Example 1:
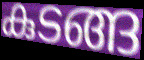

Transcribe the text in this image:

കുടങ്ങ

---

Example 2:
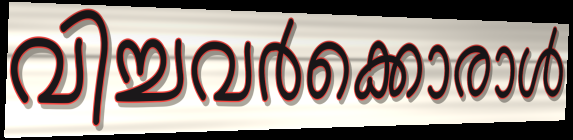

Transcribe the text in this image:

വിച്ചവർക്കൊരാൾ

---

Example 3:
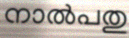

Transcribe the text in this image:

നാൽപതു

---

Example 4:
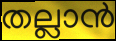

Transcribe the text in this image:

തല്ലാൻ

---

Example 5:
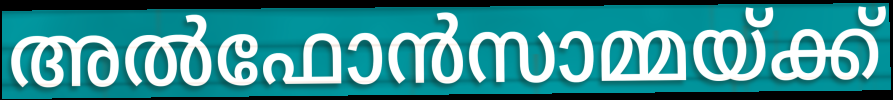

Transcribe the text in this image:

അൽഫോൻസാമ്മയ്ക്ക്